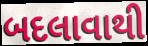
બદલાવાથી